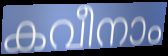
കവീനാം